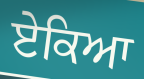
ਏਕਿਆ